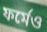
ফর্মেও